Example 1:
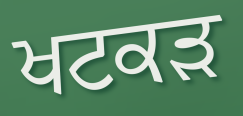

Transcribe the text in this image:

ਖਟਕੜ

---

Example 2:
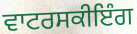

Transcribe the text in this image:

ਵਾਟਰਸਕੀਇੰਗ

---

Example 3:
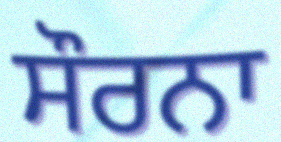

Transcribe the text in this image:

ਸੌਰਨਾ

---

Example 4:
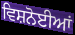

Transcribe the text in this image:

ਵਿਸ਼ਨੋਈਆਂ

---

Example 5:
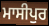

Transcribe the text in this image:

ਮਾਸੀਪੁਰ